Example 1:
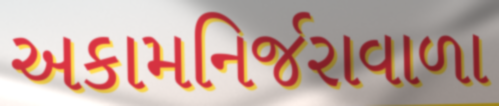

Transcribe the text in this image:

અકામનિર્જરાવાળા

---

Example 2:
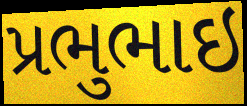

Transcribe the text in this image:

પ્રભુભાઇ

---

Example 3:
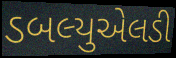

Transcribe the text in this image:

ડબલ્યુએલડી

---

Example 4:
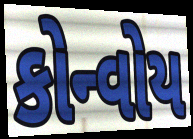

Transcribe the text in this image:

કોન્વોય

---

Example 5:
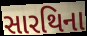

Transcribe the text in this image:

સારથિના